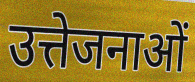
उत्तेजनाओं